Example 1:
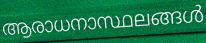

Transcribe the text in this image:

ആരാധനാസ്ഥലങ്ങൾ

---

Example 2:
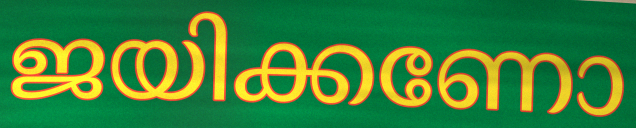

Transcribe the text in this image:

ജയിക്കണോ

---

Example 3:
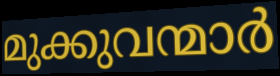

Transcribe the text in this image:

മുക്കുവന്മാർ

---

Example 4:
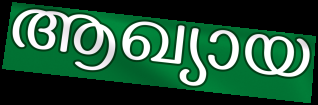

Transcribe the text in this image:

ആഖ്യായ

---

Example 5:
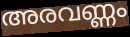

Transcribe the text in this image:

അരവണ്ണം